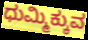
ಧುಮ್ಮಿಕ್ಕುವ